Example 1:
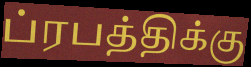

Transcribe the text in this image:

ப்ரபத்திக்கு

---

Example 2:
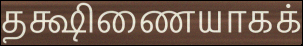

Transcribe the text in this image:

தக்ஷிணையாகக்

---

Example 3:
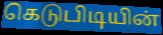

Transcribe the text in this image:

கெடுபிடியின்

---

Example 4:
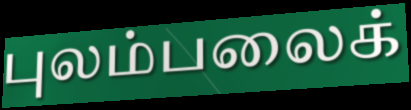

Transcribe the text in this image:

புலம்பலைக்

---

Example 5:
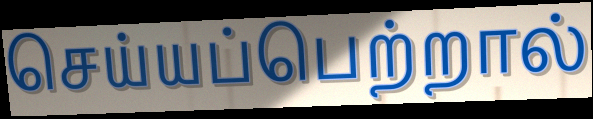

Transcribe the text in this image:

செய்யப்பெற்றால்